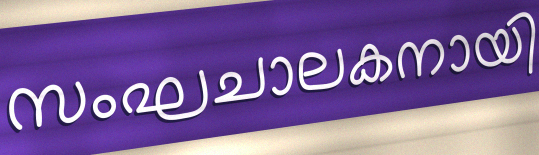
സംഘചാലകനായി